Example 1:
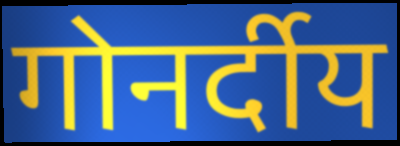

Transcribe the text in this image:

गोनर्दीय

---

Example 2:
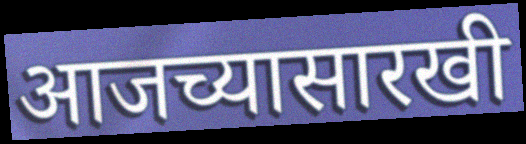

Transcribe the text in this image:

आजच्यासारखी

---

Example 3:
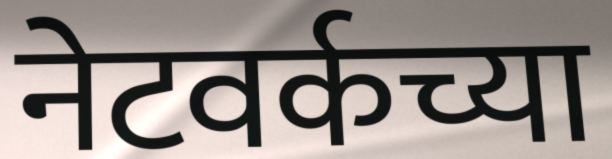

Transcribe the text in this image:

नेटवर्कच्या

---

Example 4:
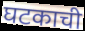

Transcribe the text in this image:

घटकाची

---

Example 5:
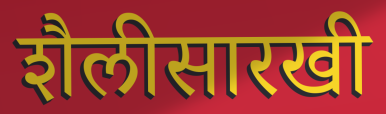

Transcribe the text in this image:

शैलीसारखी